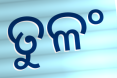
ତୁଳଂ